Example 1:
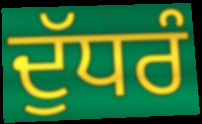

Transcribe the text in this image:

ਦੁੱਧਰੰ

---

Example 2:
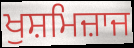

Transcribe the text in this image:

ਖੁਸ਼ਮਿਜ਼ਾਜ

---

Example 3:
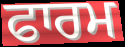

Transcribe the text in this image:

ਫਾਰਮ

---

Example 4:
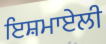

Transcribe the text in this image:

ਇਸ਼ਮਾਏਲੀ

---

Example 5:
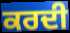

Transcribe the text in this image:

ਕਰਦੀ